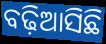
ବଢ଼ିଆସିଛି